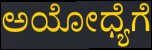
ಅಯೋಧ್ಯೆಗೆ